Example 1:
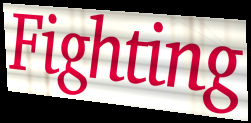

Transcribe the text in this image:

Fighting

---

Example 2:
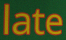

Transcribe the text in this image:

late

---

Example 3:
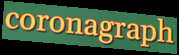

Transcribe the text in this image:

coronagraph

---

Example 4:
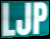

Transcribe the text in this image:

LJP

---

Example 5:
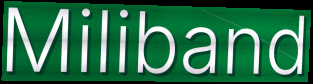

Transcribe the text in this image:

Miliband